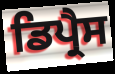
ਡਿਪ੍ਰੈਸ